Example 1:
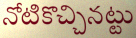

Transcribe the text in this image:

నోటికొచ్చినట్టు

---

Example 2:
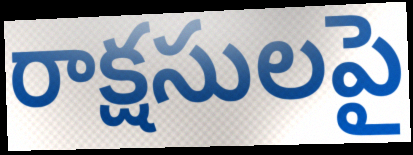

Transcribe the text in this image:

రాక్షసులపై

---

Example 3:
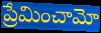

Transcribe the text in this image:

ప్రేమించామో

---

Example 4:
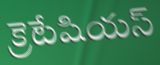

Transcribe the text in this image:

క్రెటేషియస్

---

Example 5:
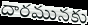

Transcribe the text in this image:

దారమునకు